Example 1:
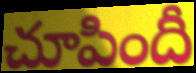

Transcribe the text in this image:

చూపిందీ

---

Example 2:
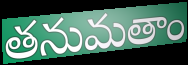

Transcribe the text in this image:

తనుమతాం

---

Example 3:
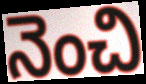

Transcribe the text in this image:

నెంచి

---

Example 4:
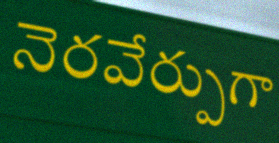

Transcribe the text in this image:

నెరవేర్పుగా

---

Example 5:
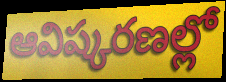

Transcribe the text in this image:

ఆవిష్కరణల్లో